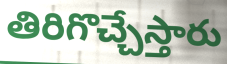
తిరిగొచ్చేస్తారు